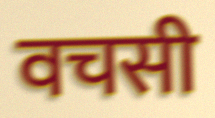
वचसी